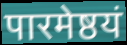
पारमेष्ठयं